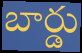
బార్డు